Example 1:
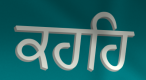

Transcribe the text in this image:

ਕਹਹਿ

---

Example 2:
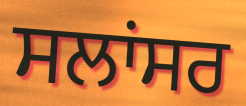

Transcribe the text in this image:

ਸਲਾਂਸਰ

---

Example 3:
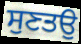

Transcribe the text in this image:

ਸੁਣਤਉ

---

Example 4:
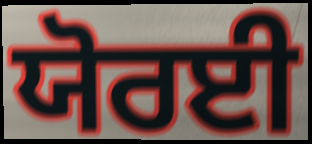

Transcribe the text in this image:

ਯੋਰਈ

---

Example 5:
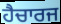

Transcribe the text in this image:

ਹੈਚਾਰਜ